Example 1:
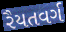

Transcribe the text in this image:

રૈયતવર્ગ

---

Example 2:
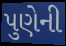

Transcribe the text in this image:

પુણેની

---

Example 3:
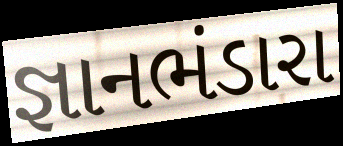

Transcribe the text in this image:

જ્ઞાનભંડારા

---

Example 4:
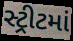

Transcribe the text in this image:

સ્ટ્રીટમાં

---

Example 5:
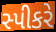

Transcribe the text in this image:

સ્પીકરે